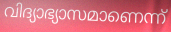
വിദ്യാഭ്യാസമാണെന്ന്